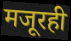
मजूरही